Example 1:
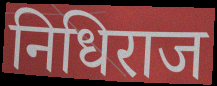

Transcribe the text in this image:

निधिराज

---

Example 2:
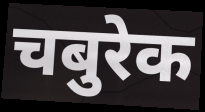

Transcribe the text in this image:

चबुरेक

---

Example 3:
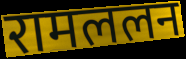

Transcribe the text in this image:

रामललन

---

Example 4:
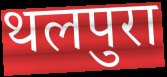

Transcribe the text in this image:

थलपुरा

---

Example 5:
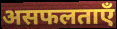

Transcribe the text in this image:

असफलताएँ